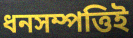
ধনসম্পত্তিই